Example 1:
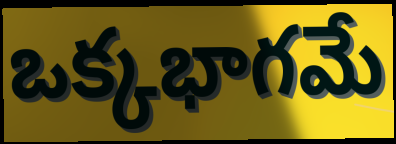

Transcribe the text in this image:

ఒక్కభాగమే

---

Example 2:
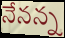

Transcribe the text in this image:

నేనన్న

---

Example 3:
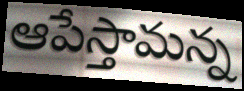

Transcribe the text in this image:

ఆపేస్తామన్న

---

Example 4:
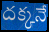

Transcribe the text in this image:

దక్కనే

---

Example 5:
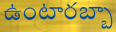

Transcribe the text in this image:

ఉంటారబ్బా